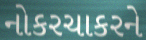
નોકરચાકરને